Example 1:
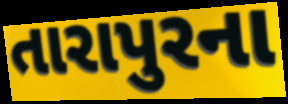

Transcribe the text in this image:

તારાપુરના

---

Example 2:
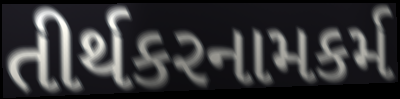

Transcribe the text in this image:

તીર્થકરનામકર્મ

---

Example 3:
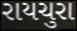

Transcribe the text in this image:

રાયચુરા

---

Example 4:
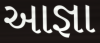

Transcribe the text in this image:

આજ્ઞા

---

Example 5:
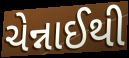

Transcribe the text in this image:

ચેન્નાઈથી